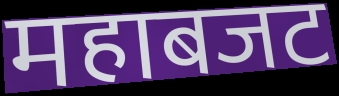
महाबजट